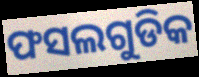
ଫସଲଗୁଡିକ